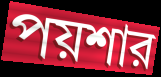
পয়শার